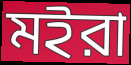
মইরা